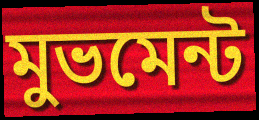
মুভমেন্ট